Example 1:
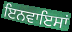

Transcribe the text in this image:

ਇਨਵਾਇਸਾਂ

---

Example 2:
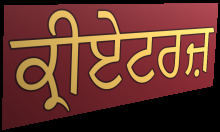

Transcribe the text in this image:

ਕ੍ਰੀਏਟਰਜ਼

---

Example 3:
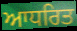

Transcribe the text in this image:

ਆਧਰਿਤ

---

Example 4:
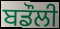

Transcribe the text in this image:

ਬਡੌਲੀ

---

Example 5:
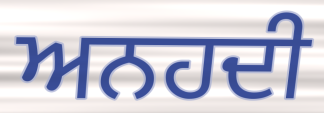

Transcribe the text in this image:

ਅਨਹਦੀ